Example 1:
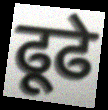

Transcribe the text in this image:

ढूढे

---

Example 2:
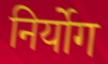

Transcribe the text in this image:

निर्योग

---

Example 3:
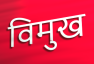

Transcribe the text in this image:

विमुख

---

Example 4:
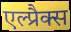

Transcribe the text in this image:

एल्प्रैक्स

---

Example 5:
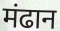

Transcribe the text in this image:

मंढान